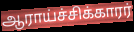
ஆராய்ச்சிக்காரர்